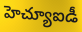
హెచ్యూఐడీ